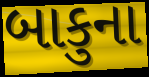
બાકુના